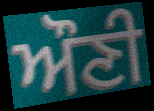
ਔਣੀ